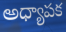
అధ్యాపక